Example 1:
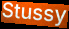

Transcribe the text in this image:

Stussy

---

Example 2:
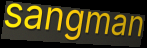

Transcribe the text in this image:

sangman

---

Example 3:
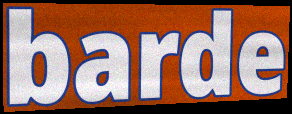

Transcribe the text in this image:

barde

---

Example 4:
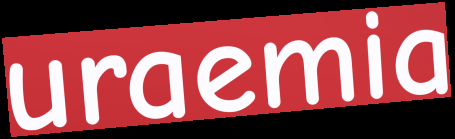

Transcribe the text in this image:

uraemia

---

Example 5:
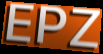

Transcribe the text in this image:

EPZ